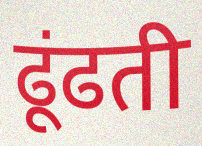
ढूंढती